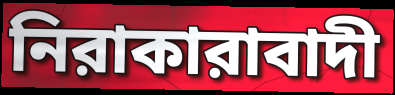
নিরাকারাবাদী